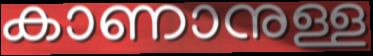
കാണാനുള്ള